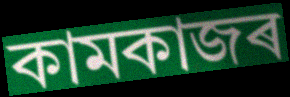
কামকাজৰ